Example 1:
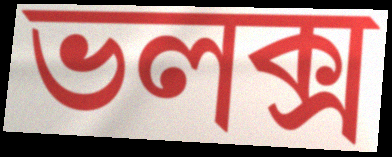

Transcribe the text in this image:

ভলক্স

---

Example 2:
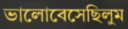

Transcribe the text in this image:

ভালোবেসেছিলুম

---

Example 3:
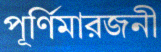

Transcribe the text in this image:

পূর্ণিমারজনী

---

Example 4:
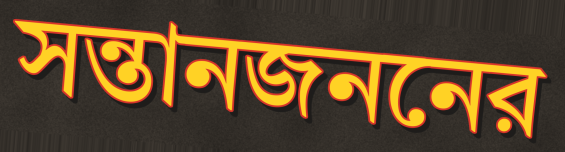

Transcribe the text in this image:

সন্তানজননের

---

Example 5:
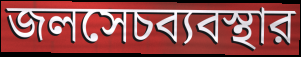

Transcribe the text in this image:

জলসেচব্যবস্থার